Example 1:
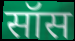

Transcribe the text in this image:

सॉस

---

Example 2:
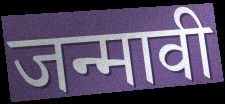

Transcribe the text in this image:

जन्मावी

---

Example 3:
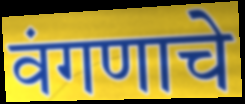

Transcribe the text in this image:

वंगणाचे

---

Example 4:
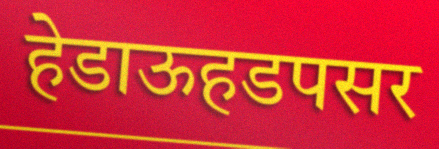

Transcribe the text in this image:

हेडाऊहडपसर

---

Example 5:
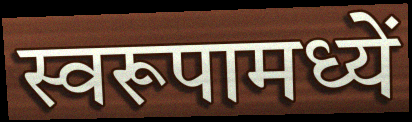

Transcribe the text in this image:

स्वरूपामध्यें